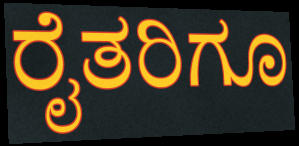
ರೈತರಿಗೂ